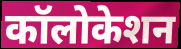
कॉलोकेशन